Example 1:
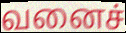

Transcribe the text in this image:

வனைச்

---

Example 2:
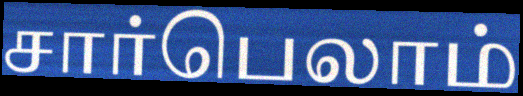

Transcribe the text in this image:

சார்பெலாம்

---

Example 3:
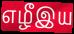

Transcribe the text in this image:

எழீஇய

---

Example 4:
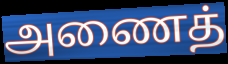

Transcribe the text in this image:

அணைத்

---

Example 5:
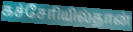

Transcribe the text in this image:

கச்சேரியில்தான்